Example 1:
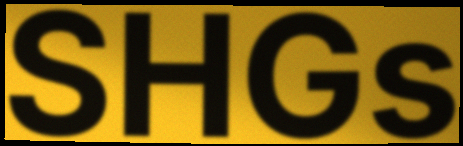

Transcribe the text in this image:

SHGs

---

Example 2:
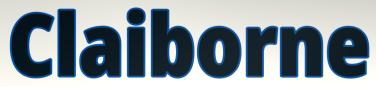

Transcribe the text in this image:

Claiborne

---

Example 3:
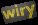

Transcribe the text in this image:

wiry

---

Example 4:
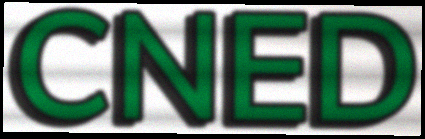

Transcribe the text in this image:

CNED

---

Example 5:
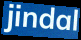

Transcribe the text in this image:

jindal